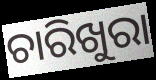
ଚାରିଖୁରା